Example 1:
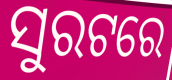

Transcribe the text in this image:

ସୁରଟରେ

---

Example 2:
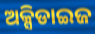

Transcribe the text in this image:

ଅକ୍ସିଡାଇଜ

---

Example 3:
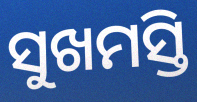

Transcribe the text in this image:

ସୁଖମସ୍ତି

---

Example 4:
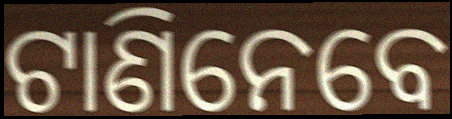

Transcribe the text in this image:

ଟାଣିନେବେ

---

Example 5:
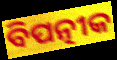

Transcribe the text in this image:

ବିପତ୍ନୀକ